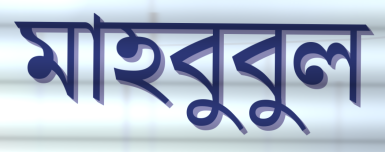
মাহবুবুল